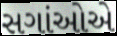
સગાંઓએ